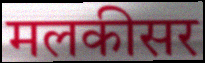
मलकीसर